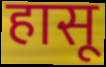
हासू